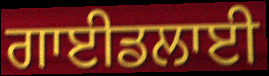
ਗਾਈਡਲਾਈ